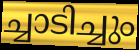
ച്ചാടിച്ചും